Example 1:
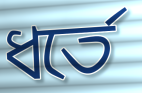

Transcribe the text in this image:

ধর্তে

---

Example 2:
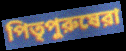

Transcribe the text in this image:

পিতৃপুরুষেরা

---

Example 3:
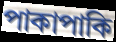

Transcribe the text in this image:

পাকাপাকি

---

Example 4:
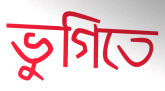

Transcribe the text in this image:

ভুগিতে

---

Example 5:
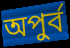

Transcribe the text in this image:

অপুর্ব